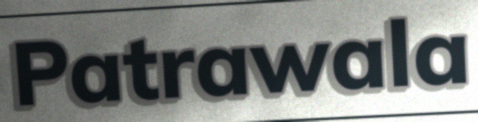
Patrawala